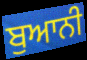
ਬੁਆਨੀ